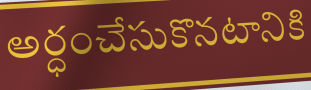
అర్ధంచేసుకొనటానికి